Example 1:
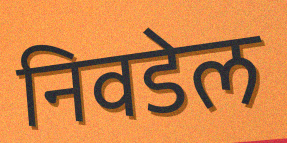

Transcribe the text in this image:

निवडेल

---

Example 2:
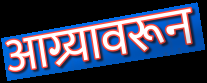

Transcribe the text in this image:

आग्र्यावरून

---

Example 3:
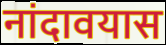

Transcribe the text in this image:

नांदावयास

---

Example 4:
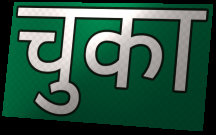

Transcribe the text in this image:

चुका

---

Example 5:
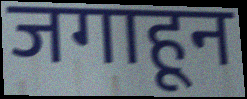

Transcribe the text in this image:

जगाहून